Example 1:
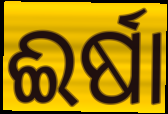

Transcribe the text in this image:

ଈର୍ଷା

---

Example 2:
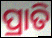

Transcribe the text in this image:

ପ୍ରାତି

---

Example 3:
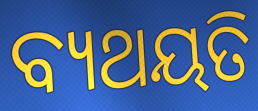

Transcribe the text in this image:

ବ୍ୟଥୟତି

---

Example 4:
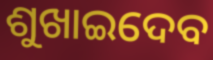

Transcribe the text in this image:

ଶୁଖାଇଦେବ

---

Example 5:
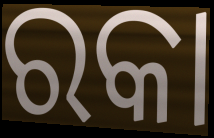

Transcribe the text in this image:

ରକା